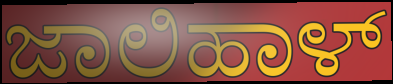
ಜಾಲಿಹಾಳ್